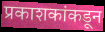
प्रकाशकांकडून